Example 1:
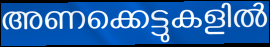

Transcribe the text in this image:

അണക്കെട്ടുകളിൽ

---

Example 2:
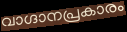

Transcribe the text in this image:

വാഗ്ദാനപ്രകാരം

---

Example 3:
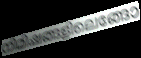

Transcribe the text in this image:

നിമിഷങ്ങളിലെങ്ങോ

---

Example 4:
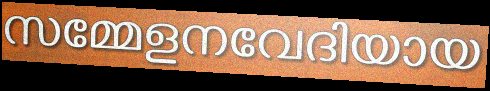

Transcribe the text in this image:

സമ്മേളനവേദിയായ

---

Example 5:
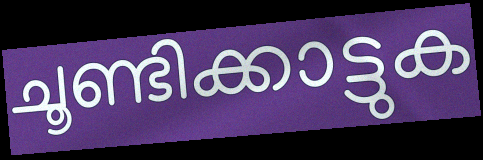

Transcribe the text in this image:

ചൂണ്ടിക്കാട്ടുക